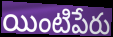
యింటిపేరు